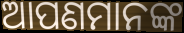
ଆପଣମାନଙ୍କ